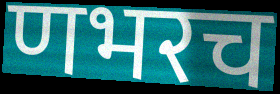
णभरच